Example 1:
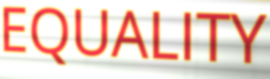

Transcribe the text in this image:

EQUALITY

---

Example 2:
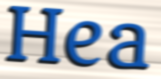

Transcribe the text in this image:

Hea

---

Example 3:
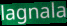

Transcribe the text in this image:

lagnala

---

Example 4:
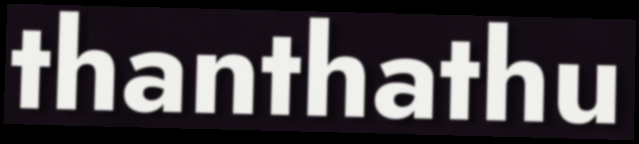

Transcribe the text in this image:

thanthathu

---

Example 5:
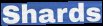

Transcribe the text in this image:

Shards